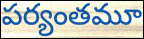
పర్యంతమూ